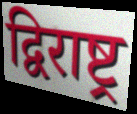
द्विराष्ट्र